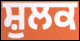
ਸ਼ੁਲਕ